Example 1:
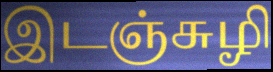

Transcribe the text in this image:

இடஞ்சுழி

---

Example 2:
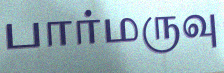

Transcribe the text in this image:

பார்மருவு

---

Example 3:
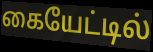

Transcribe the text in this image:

கையேட்டில்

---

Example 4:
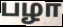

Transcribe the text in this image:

பழா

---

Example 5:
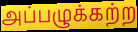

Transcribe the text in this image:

அப்பழுக்கற்ற